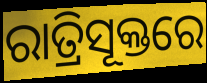
ରାତ୍ରିସୂକ୍ତରେ